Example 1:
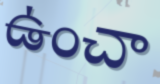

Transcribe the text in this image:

ఉంచా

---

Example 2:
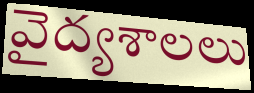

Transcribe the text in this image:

వైద్యశాలలు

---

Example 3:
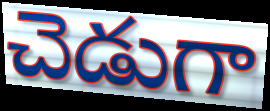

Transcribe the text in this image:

చెడుగా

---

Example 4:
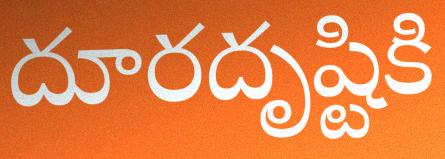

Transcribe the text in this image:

దూరదృష్టికి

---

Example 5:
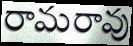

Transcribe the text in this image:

రామరావు